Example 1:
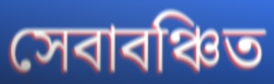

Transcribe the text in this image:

সেবাবঞ্চিত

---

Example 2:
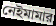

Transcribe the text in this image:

নেইমামার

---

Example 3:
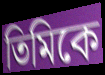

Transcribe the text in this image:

তিমিকে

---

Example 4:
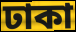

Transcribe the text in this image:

ঢাকা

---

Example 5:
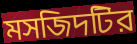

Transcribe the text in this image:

মসজিদটির